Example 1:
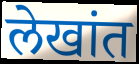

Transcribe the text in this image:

लेखांत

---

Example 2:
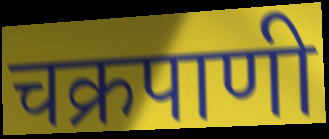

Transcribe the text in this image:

चक्रपाणी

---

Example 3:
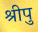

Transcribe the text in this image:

श्रीपु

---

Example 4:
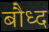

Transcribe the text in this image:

बौध्द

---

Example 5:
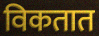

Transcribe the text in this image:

विकतात